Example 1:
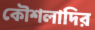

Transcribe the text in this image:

কৌশলাদির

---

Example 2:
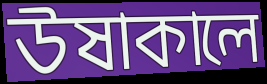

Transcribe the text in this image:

উষাকালে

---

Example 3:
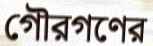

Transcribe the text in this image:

গৌরগণের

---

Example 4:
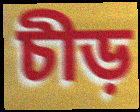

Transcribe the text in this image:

চীড়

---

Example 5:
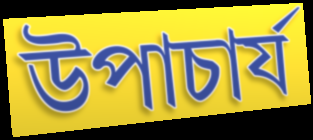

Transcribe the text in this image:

উপাচার্য